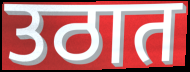
उठात